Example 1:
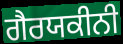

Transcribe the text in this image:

ਗੈਰਯਕੀਨੀ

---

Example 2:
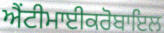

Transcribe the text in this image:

ਐਂਟੀਮਾਈਕਰੋਬਾਇਲ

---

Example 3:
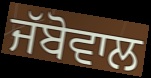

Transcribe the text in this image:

ਜੱਬੋਵਾਲ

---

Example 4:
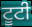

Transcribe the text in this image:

ਟੂਟੀ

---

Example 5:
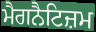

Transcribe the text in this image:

ਮੈਗਨੈਟਿਜ਼ਮ